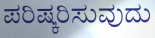
ಪರಿಷ್ಕರಿಸುವುದು